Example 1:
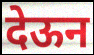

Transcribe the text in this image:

देऊन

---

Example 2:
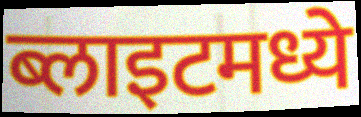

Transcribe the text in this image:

ब्लाइटमध्ये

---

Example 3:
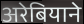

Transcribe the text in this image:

अरेबियाने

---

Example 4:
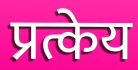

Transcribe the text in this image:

प्रत्केय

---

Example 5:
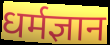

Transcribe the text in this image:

धर्मज्ञान